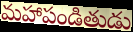
మహాపండితుడు